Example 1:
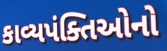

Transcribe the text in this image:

કાવ્યપંક્તિઓનો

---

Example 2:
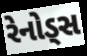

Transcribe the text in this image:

રેનોડ્સ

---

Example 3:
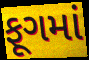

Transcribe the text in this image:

ફૂગમાં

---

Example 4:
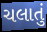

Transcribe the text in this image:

ચલાતું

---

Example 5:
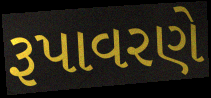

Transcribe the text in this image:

રૂપાવરણે